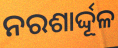
ନରଶାର୍ଦ୍ଦୂଳ